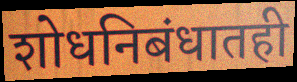
शोधनिबंधातही